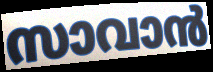
സാവാൻ